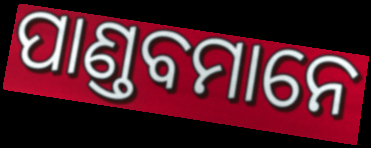
ପାଣ୍ଡବମାନେ